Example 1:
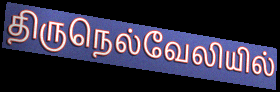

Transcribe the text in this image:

திருநெல்வேலியில்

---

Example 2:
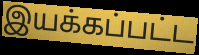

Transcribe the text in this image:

இயக்கப்பட்ட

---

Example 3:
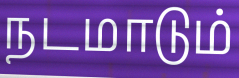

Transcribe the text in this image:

நடமாடும்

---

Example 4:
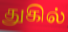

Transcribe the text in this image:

துகில்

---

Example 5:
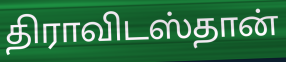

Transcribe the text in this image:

திராவிடஸ்தான்